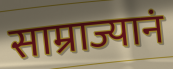
साम्राज्यानं